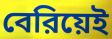
বেরিয়েই